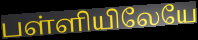
பள்ளியிலேயே